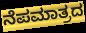
ನೆಪಮಾತ್ರದ